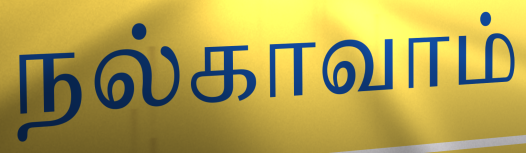
நல்காவாம்